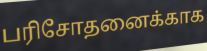
பரிசோதனைக்காக